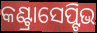
କଣ୍ଟ୍ରାସେପ୍ଟିଭ